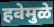
हवेमुळे